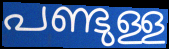
പണ്ടുള്ള